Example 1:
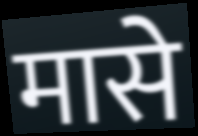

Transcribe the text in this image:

मासे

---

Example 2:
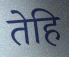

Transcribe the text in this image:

तेहि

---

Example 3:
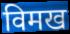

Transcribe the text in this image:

विमख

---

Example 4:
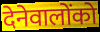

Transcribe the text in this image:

देनेवालोंको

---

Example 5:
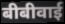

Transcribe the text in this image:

बीबीवाई